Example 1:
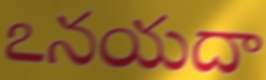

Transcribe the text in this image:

ఽనయదా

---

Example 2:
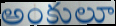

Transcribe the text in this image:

అంకులూ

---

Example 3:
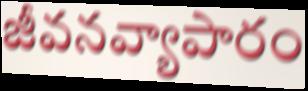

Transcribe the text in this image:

జీవనవ్యాపారం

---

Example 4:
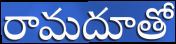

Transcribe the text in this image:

రామదూతో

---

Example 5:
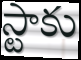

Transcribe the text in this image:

స్టాకు